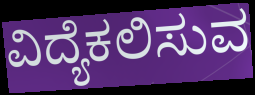
ವಿದ್ಯೆಕಲಿಸುವ